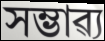
সম্ভাৱ্য